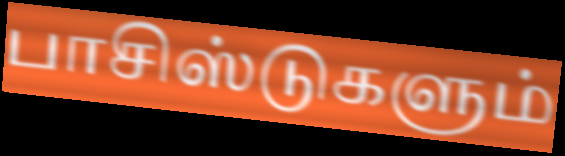
பாசிஸ்டுகளும்